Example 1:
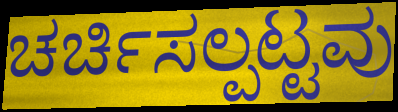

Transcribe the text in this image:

ಚರ್ಚಿಸಲ್ಪಟ್ಟವು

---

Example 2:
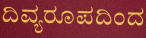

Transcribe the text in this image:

ದಿವ್ಯರೂಪದಿಂದ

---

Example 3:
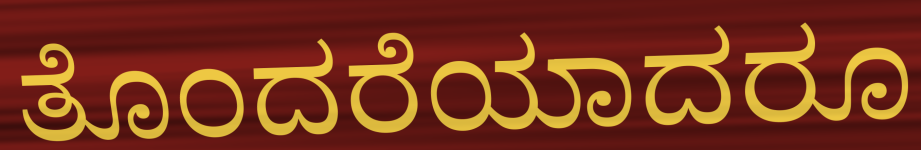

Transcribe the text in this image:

ತೊಂದರೆಯಾದರೂ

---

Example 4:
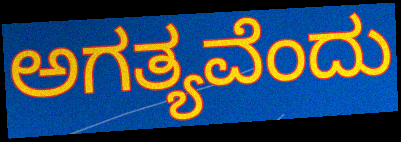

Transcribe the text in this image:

ಅಗತ್ಯವೆಂದು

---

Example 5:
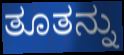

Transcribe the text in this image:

ತೂತನ್ನು